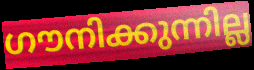
ഗൗനിക്കുന്നില്ല